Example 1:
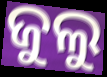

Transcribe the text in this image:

ଜୁଲୁ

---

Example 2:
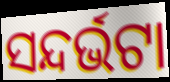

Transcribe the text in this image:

ସନ୍ଦର୍ଭଟା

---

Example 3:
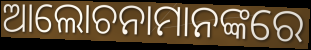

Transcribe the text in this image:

ଆଲୋଚନାମାନଙ୍କରେ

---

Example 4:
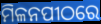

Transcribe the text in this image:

ମିଳନପୀଠରେ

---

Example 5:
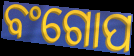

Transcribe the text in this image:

ବଂଗୋପ